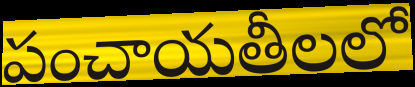
పంచాయతీలలో